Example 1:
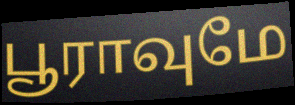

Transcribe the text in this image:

பூராவுமே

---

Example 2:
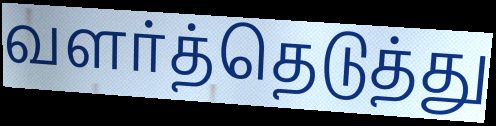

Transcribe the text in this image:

வளர்த்தெடுத்து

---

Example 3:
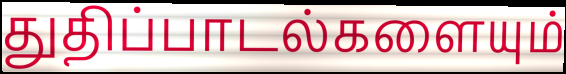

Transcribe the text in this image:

துதிப்பாடல்களையும்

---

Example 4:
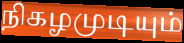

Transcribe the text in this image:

நிகழமுடியும்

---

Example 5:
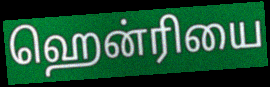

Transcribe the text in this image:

ஹென்ரியை